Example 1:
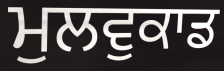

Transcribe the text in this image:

ਮੁਲਵੁਕਾਡ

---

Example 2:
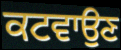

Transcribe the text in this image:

ਕਟਵਾਉਣ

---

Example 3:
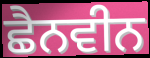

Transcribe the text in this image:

ਛੈਨਵੀਨ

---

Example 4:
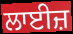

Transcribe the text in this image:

ਲਾਈਜ਼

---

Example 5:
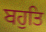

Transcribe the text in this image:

ਬਹੁਤਿ